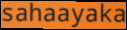
sahaayaka